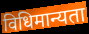
विधिमान्यता